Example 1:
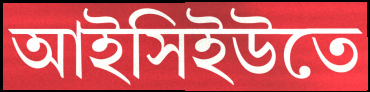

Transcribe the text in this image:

আইসিইউতে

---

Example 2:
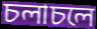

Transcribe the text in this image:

চলাচলে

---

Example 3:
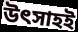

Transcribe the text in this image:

উৎসাহই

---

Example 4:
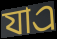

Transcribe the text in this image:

যাএ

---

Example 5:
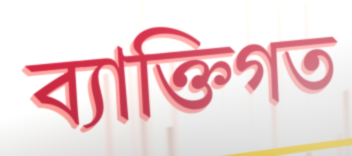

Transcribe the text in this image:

ব্যাক্তিগত